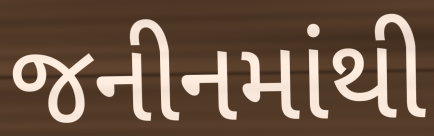
જનીનમાંથી